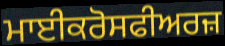
ਮਾਈਕਰੋਸਫੀਅਰਜ਼